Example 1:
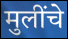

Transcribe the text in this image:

मुलींचे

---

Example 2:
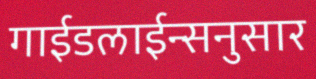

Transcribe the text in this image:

गाईडलाईन्सनुसार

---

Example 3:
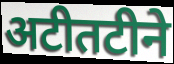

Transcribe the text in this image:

अटीतटीने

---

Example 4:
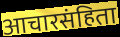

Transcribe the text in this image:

आचारसंहिता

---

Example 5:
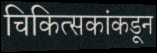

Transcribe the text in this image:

चिकित्सकांकडून